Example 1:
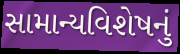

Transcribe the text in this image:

સામાન્યવિશેષનું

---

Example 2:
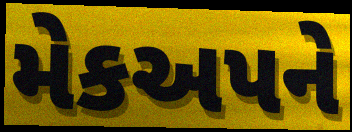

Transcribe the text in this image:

મેકઅપને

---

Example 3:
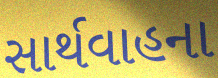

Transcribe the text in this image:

સાર્થવાહના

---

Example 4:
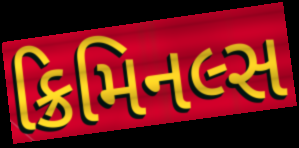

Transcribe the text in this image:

ક્રિમિનલ્સ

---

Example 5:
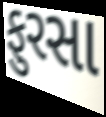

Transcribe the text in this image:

ફુરસા